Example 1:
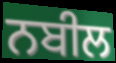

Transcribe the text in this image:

ਨਬੀਲ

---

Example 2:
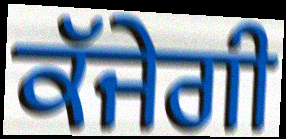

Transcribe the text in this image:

ਕੱਜੇਗੀ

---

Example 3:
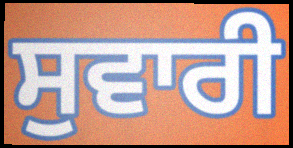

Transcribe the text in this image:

ਸੁਵਾਰੀ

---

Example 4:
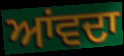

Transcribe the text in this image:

ਆਂਵਦਾ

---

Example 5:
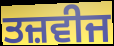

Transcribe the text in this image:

ਤਜ਼ਵੀਜ